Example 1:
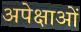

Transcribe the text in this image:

अपेक्षाओं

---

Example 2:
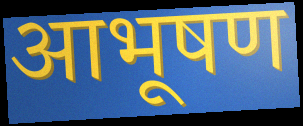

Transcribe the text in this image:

आभूषण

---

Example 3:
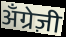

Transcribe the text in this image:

अँग्रेज़ी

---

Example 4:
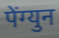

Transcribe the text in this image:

पेंग्युन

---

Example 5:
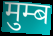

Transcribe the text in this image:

मुम्ब